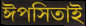
ঈপসিতাই